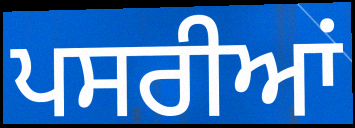
ਪਸਰੀਆਂ